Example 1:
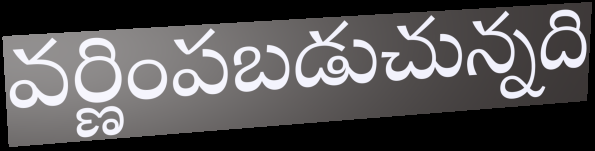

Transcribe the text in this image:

వర్ణింపబడుచున్నది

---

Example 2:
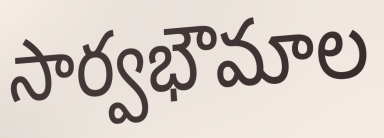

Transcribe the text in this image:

సార్వభౌమాల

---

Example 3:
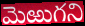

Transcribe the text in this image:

మెఱుగని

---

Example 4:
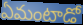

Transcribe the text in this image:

ఏమంటాడో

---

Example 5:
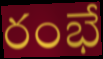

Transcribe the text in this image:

రంభే